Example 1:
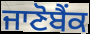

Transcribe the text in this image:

ਜਾਣੋਬੈਂਕ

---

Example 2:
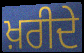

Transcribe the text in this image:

ਖ਼ਰੀਦੇ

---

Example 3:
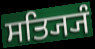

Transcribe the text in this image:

ਸਤ੍ਯ੍ਯਿੰ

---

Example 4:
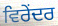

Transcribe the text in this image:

ਵਿਰੇਂਦਰ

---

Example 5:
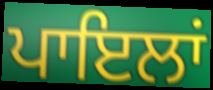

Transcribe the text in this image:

ਪਾਇਲਾਂ